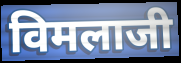
विमलाजी